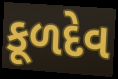
કૂળદેવ